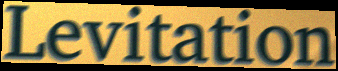
Levitation